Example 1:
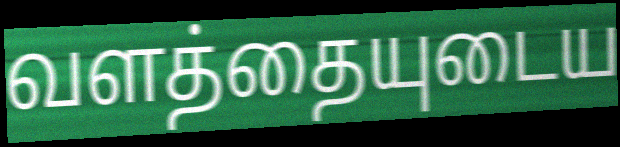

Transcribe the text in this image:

வளத்தையுடைய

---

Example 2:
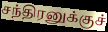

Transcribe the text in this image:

சந்திரனுக்குச்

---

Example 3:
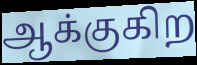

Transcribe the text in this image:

ஆக்குகிற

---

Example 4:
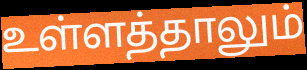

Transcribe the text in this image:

உள்ளத்தாலும்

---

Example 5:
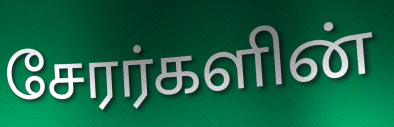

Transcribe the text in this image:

சேரர்களின்